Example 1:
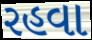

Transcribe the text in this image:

રહવા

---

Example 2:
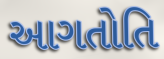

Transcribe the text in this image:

આગતોતિ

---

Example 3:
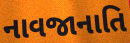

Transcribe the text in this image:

નાવજાનાતિ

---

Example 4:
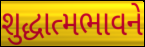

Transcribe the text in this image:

શુદ્ધાત્મભાવને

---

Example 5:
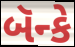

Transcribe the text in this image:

બૅન્કે